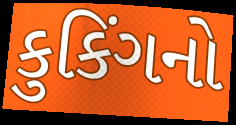
કુકિંગનો